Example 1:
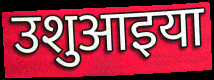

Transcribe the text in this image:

उशुआइया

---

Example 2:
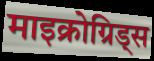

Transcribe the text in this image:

माइक्रोग्रिड्स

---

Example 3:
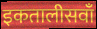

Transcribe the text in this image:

इकतालीसवाँ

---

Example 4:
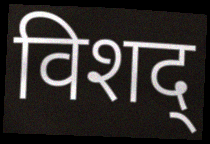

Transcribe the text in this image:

विशद्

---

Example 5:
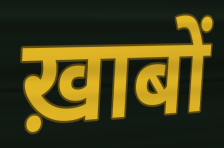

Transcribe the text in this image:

ख़ाबों